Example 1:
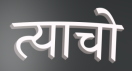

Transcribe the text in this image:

त्याचो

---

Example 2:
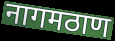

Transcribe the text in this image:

नागमठाण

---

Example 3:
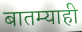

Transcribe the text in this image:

बातम्याही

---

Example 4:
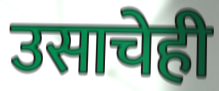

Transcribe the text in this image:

उसाचेही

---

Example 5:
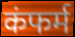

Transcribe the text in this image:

कंफर्म